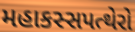
મહાકસ્સપત્થેરો